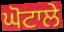
ਘੋਟਾਲੇ